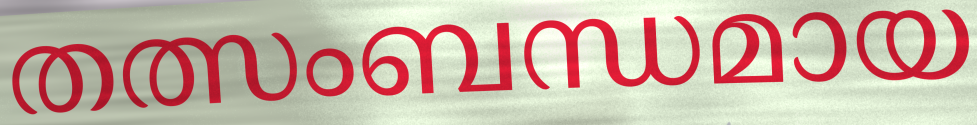
തത്സംബന്ധമായ